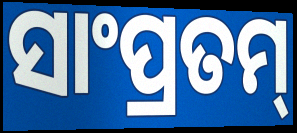
ସାଂପ୍ରତମ୍